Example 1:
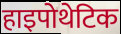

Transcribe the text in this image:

हाइपोथेटिक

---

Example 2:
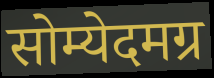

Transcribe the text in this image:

सोम्येदमग्र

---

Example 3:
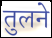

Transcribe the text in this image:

तुलने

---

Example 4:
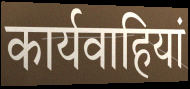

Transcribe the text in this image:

कार्यवाहियां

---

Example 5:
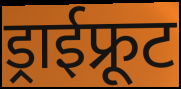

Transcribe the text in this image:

ड्राईफ्रूट